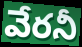
వేరనీ